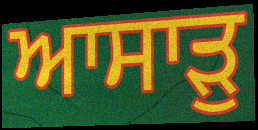
ਆਸਾੜੁ